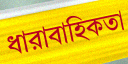
ধারাবাহিকতা